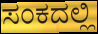
ಸಂಕದಲ್ಲಿ